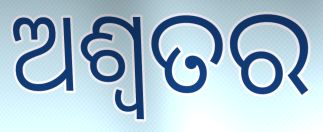
ଅଶ୍ୱତର